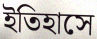
ইতিহাসে